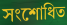
সংশোধিত